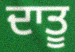
ਦਾਤੂ